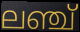
ലഞ്ച്